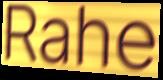
Rahe